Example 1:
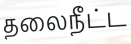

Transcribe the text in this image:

தலைநீட்ட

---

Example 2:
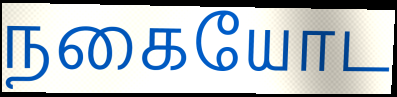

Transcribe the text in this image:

நகையோட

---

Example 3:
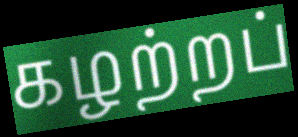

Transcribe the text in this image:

கழற்றப்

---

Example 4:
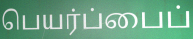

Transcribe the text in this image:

பெயர்ப்பைப்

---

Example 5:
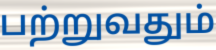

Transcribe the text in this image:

பற்றுவதும்